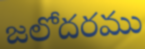
జలోదరము